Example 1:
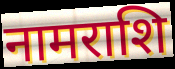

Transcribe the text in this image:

नामराशि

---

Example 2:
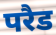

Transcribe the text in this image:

परैड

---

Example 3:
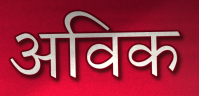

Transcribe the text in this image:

अविक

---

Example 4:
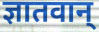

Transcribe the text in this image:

ज्ञातवान्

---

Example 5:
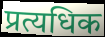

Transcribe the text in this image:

प्रत्यधिक